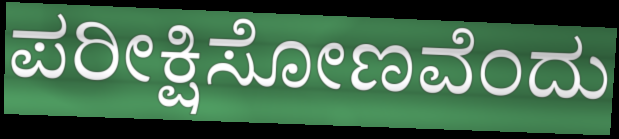
ಪರೀಕ್ಷಿಸೋಣವೆಂದು